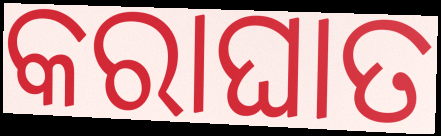
କରାଘାତ